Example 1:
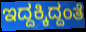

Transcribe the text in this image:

ಇದ್ದಕ್ಕಿದ್ದಂತೆ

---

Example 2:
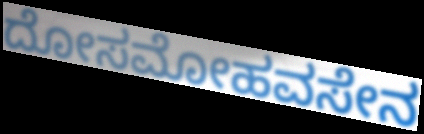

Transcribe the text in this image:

ದೋಸಮೋಹವಸೇನ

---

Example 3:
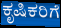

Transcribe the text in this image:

ಕೃಷಿಕರಿಗೆ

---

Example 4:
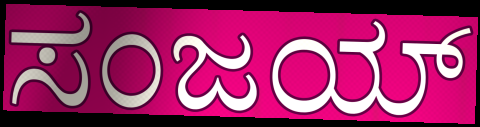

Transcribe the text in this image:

ಸಂಜಯ್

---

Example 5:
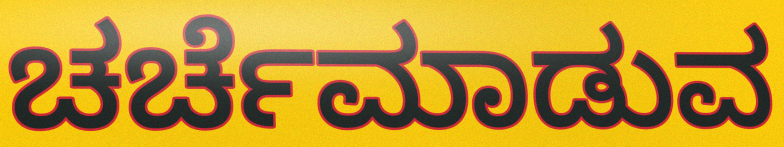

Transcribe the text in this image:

ಚರ್ಚೆಮಾಡುವ